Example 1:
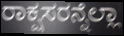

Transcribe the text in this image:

ರಾಕ್ಷಸರನ್ನೆಲ್ಲಾ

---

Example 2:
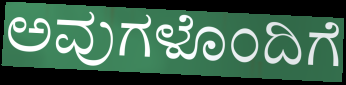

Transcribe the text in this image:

ಅವುಗಳೊಂದಿಗೆ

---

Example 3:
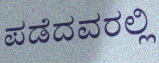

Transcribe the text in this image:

ಪಡೆದವರಲ್ಲಿ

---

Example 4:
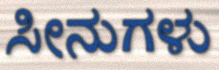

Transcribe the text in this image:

ಸೀನುಗಳು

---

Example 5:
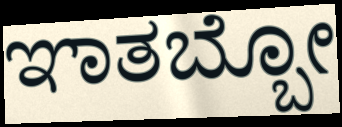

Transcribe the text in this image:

ಞಾತಬ್ಬೋ